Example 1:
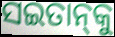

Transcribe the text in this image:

ସଇତାନ୍‌କୁ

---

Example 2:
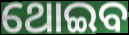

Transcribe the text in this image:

ଥୋଇବ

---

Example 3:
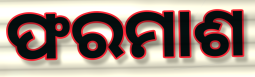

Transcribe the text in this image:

ଫରମାଶ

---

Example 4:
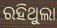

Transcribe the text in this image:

ରହିଥୁଲା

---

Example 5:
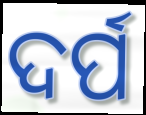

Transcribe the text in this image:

ଦର୍ପ